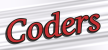
Coders